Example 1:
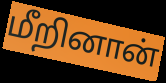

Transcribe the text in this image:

மீறினான்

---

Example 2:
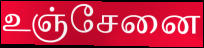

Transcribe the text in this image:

உஞ்சேனை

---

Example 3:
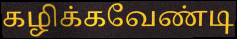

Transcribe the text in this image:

கழிக்கவேண்டி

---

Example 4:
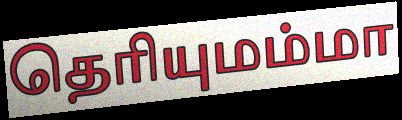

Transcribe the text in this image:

தெரியுமம்மா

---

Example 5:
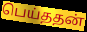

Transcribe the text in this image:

பெய்ததன்